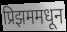
प्रिझममधून